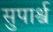
सुपार्श्व